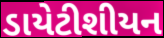
ડાયેટીશીયન